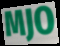
MJO